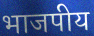
भाजपीय